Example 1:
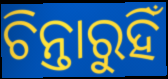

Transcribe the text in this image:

ଚିନ୍ତାରୁହିଁ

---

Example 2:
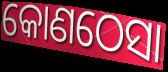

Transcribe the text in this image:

କୋଣଠେସା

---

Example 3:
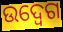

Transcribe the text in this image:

ଉଦ୍ବେଗ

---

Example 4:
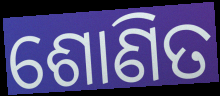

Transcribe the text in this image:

ଶୋଣିତ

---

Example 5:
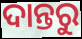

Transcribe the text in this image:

ଦାନ୍ତରୁ